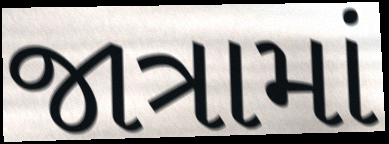
જાત્રામાં